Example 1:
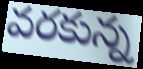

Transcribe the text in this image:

వరకున్న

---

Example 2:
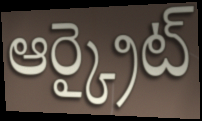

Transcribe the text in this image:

ఆర్క్రైట్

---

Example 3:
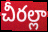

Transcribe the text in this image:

చీరల్లా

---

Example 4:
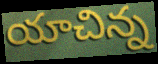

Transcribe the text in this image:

యాచిన్న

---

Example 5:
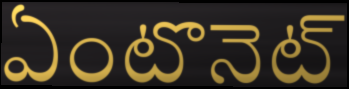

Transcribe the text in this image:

ఏంటొనెట్